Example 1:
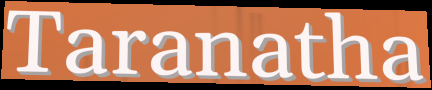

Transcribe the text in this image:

Taranatha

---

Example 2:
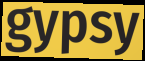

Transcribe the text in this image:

gypsy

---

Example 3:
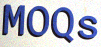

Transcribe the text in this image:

MOQs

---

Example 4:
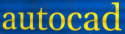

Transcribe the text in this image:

autocad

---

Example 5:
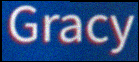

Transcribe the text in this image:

Gracy